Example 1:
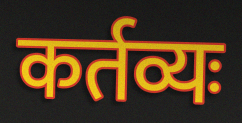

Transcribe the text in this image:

कर्तव्यः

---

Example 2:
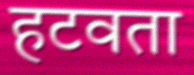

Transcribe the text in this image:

हटवता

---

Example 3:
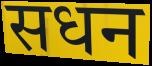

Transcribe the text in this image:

सधन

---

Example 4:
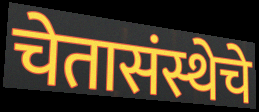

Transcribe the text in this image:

चेतासंस्थेचे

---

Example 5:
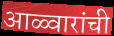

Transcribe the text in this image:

आळ्वारांची